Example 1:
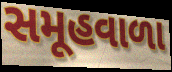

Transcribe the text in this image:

સમૂહવાળા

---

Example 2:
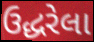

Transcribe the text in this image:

ઉદ્ધરેલા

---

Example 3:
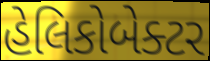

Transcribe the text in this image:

હેલિકોબેક્ટર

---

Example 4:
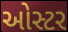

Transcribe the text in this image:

ઓસ્ટર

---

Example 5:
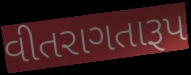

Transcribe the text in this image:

વીતરાગતારૂપ